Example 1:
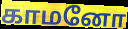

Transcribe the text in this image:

காமனோ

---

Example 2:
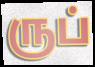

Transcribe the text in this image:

ருப்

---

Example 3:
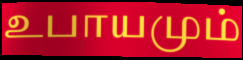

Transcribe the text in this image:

உபாயமும்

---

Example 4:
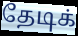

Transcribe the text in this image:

தேடிக்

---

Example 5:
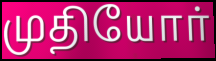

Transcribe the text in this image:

முதியோர்